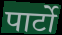
पार्टो